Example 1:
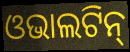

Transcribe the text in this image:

ଓଭାଲଟିନ୍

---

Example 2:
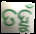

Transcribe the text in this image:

ତହୁଁ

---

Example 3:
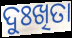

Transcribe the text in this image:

ଦୁଃଖିତା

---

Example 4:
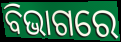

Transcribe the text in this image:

ବିଭାଗରେ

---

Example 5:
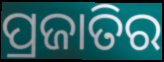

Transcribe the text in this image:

ପ୍ରଜାତିର